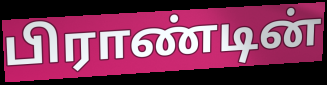
பிராண்டின்